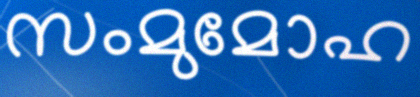
സംമുമോഹ